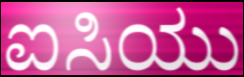
ಐಸಿಯು